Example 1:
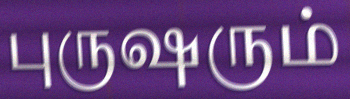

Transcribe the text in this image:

புருஷரும்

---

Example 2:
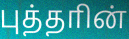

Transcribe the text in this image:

புத்தரின்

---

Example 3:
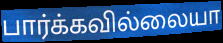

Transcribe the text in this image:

பார்க்கவில்லையா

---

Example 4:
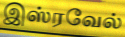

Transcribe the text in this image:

இஸ்ரவேல்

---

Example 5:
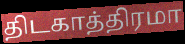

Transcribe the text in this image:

திடகாத்திரமா